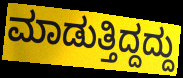
ಮಾಡುತ್ತಿದ್ದದ್ದು